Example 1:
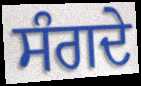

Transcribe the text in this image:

ਸੰਗਦੇ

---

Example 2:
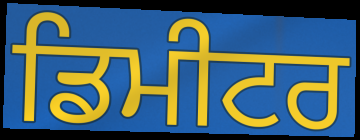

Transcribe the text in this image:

ਡਿਮੀਟਰ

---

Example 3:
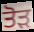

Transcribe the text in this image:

ਤੋਡ਼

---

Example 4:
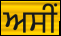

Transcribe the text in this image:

ਅਸੀੰ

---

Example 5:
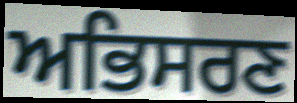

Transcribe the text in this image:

ਅਭਿਸਰਣ